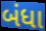
બંધા